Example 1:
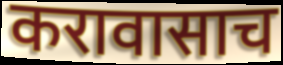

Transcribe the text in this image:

करावासाच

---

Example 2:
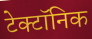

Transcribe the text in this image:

टेक्टॉनिक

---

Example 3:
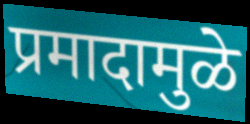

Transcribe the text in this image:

प्रमादामुळे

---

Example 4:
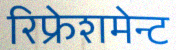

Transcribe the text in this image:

रिफ्रेशमेन्ट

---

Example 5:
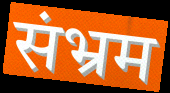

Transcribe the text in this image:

संभ्रम